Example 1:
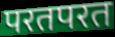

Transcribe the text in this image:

परतपरत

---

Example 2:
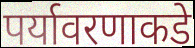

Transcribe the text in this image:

पर्यावरणाकडे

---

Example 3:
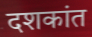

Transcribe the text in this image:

दशकांत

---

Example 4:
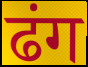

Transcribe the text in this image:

ढंग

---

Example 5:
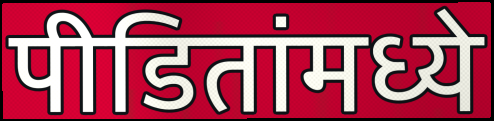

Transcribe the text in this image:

पीडितांमध्ये